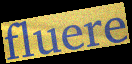
fluere